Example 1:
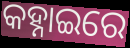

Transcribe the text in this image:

କହ୍ନାଇରେ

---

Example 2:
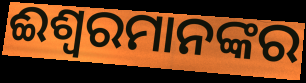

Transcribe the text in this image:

ଈଶ୍ୱରମାନଙ୍କର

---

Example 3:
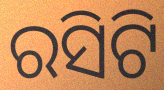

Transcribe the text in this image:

ରସିଟି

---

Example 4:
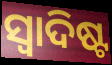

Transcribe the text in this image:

ସ୍ବାଦିଷ୍ଟ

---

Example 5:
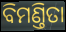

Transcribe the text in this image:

ବିମଣ୍ତିତା